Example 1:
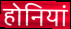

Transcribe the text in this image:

होनियां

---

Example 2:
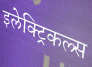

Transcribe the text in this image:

इलेक्ट्रिकल्स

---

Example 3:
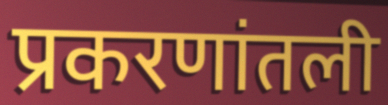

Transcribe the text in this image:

प्रकरणांतली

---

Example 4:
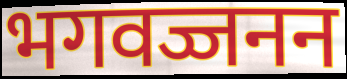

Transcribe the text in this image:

भगवज्जनन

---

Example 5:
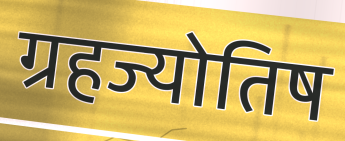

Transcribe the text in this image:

ग्रहज्योतिष